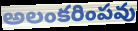
అలంకరింపవు